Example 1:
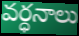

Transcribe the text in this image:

వర్ధనాలు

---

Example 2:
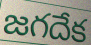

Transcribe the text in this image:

జగదేక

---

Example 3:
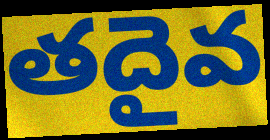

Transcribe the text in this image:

తదైవ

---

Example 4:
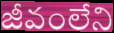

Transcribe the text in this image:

జీవంలేని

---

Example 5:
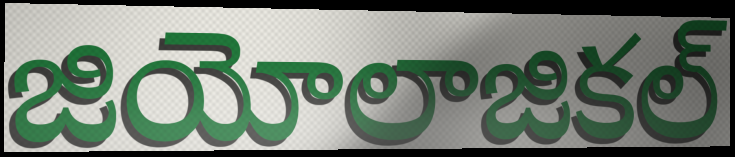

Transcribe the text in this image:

జియోలాజికల్